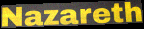
Nazareth